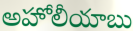
అహోలీయాబు